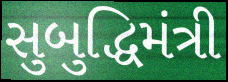
સુબુદ્ધિમંત્રી